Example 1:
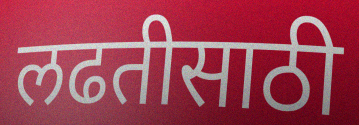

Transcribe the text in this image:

लढतीसाठी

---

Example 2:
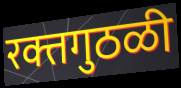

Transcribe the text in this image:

रक्तगुठळी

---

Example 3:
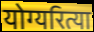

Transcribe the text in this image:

योग्यरित्या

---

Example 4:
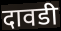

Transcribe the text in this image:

दावडी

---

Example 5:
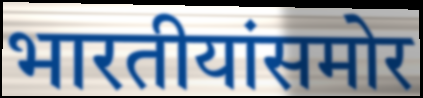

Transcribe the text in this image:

भारतीयांसमोर